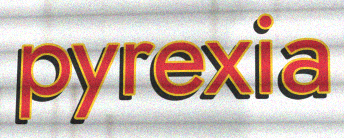
pyrexia